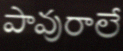
పావురాలే